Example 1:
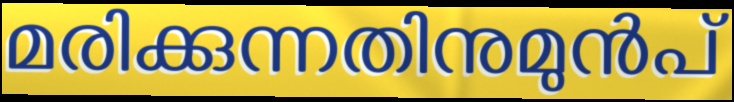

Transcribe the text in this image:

മരിക്കുന്നതിനുമുൻപ്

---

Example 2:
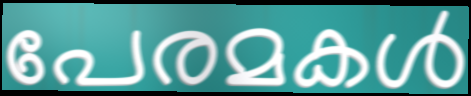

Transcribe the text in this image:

പേരമകൾ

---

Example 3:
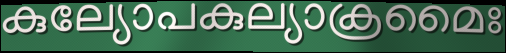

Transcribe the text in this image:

കുല്യോപകുല്യാക്രമൈഃ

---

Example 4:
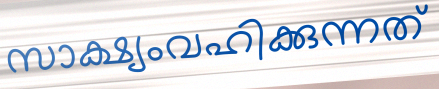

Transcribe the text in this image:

സാക്ഷ്യംവഹിക്കുന്നത്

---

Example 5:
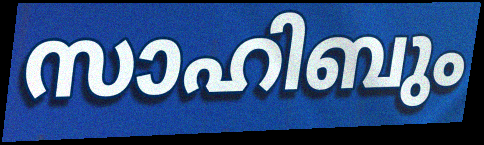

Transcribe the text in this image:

സാഹിബും